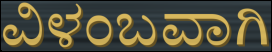
ವಿಳಂಬವಾಗಿ